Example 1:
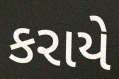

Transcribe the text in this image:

કરાયે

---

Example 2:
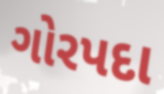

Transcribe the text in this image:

ગોરપદા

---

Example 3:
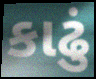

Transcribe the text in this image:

કાઢું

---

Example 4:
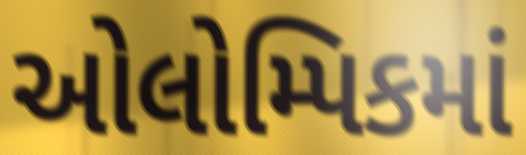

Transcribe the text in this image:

ઓલોમ્પિકમાં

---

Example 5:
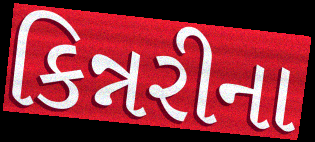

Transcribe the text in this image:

કિન્નરીના